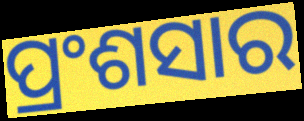
ପ୍ରଂଶସାର